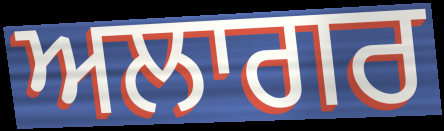
ਅਲਾਗਰ